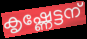
കൃഷ്ണേട്ടന്